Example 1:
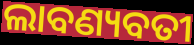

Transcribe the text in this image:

ଲାବଣ୍ୟବତୀ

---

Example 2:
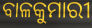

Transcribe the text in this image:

ବାଳକୁମାରୀ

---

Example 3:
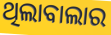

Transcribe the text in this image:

ଥିଲାବାଲାର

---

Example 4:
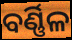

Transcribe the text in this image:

ବର୍ଣ୍ଣିଳ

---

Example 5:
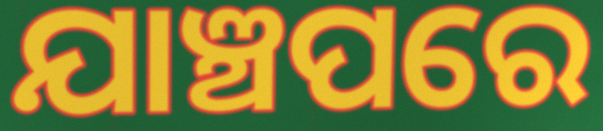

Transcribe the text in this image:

ଯାଞ୍ଚପରେ